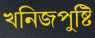
খনিজপুষ্টি